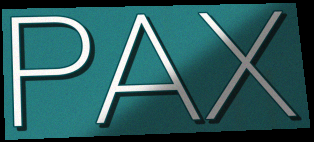
PAX